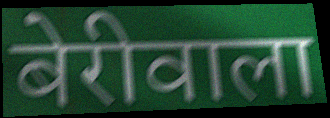
बेरीवाला